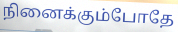
நினைக்கும்போதே